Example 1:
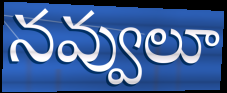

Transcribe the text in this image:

నవ్వులూ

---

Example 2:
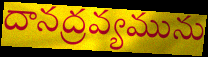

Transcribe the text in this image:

దానద్రవ్యమును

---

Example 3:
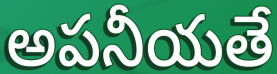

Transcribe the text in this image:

అపనీయతే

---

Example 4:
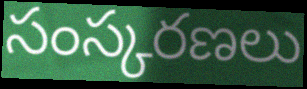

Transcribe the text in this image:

సంస్కరణలు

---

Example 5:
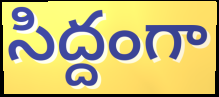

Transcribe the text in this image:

సిద్దంగా